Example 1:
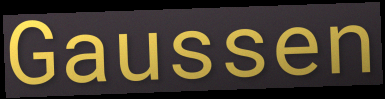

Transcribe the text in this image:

Gaussen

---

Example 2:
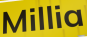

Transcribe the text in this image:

Millia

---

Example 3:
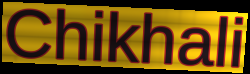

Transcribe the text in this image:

Chikhali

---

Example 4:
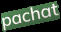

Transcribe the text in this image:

pachat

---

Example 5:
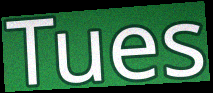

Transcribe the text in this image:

Tues